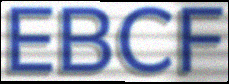
EBCF